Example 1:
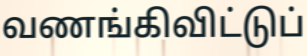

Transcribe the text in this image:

வணங்கிவிட்டுப்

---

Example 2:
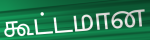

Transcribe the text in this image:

கூட்டமான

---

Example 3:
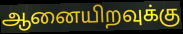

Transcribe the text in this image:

ஆனையிறவுக்கு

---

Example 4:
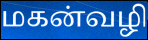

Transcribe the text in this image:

மகன்வழி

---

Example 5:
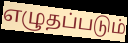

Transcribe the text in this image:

எழுதப்படும்